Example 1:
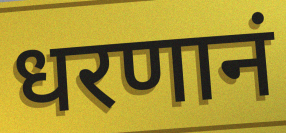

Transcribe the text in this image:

धरणानं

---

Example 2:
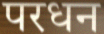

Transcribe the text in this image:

परधन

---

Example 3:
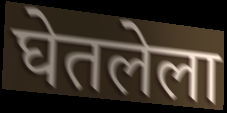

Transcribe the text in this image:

घेतलेला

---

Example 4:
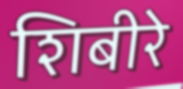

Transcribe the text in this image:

शिबीरे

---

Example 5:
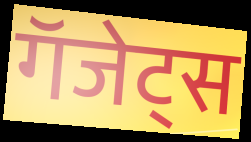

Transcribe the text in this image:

गॅजेट्स